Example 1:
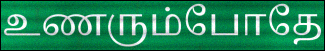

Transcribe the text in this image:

உணரும்போதே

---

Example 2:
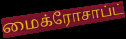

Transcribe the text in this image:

மைக்ரோசாப்ட்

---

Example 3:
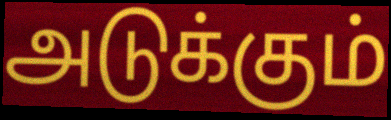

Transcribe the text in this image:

அடுக்கும்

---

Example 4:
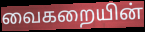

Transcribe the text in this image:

வைகறையின்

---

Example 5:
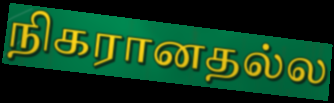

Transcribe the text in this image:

நிகரானதல்ல